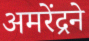
अमरेंद्रने